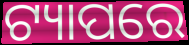
ଟ୍ୟାପରେ